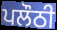
ਪਲੌਠੀ